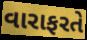
વારાફરતે